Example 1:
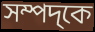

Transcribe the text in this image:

সম্পদ্‌কে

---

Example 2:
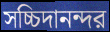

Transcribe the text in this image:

সচ্চিদানন্দর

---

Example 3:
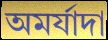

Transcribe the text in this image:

অমর্যাদা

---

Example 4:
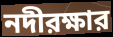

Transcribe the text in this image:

নদীরক্ষার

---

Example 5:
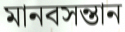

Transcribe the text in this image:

মানবসন্তান